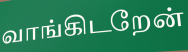
வாங்கிடறேன்